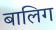
बालिग